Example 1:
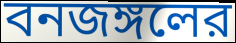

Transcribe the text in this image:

বনজঙ্গলের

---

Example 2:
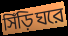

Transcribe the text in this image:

সিঁড়িঘরে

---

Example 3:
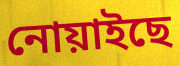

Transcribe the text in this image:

নোয়াইছে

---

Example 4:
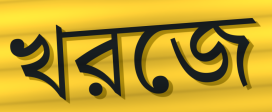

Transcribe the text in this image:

খরজে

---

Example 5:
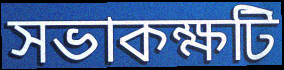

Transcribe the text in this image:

সভাকক্ষটি